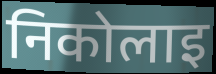
निकोलाइ